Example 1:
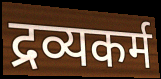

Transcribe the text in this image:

द्रव्यकर्म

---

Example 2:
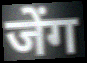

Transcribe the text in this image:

जेंग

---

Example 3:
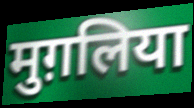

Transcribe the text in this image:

मुग़लिया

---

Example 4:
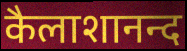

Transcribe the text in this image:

कैलाशानन्द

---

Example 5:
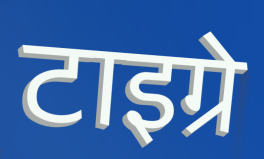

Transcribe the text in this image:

टाइग्रे